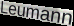
Leumann